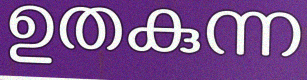
ഉതകുന്ന